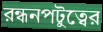
রন্ধনপটুত্বের